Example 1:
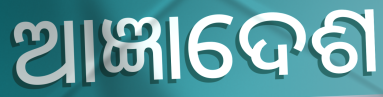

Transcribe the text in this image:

ଆଜ୍ଞାଦେଶ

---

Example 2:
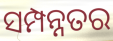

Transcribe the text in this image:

ସମ୍ପନ୍ନତର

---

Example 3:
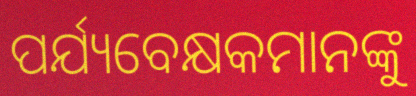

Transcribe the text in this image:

ପର୍ଯ୍ୟବେକ୍ଷକମାନଙ୍କୁ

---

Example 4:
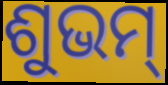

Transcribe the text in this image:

ଶୁଭମ୍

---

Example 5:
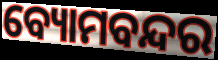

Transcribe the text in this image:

ବ୍ୟୋମବନ୍ଦର